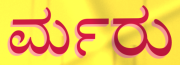
ರ್ಮರು